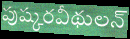
పుష్కరవీథులన్